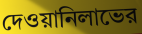
দেওয়ানিলাভের